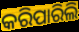
କରିପାରିଲି